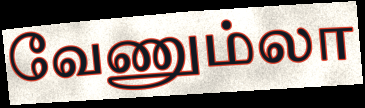
வேணும்லா